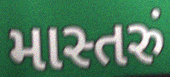
માસ્તરું